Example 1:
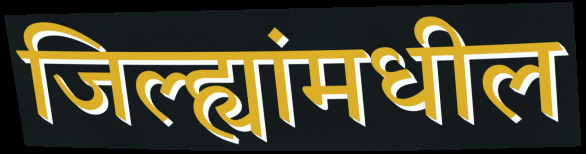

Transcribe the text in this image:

जिल्ह्यांमधील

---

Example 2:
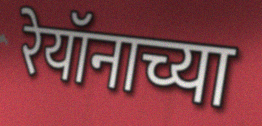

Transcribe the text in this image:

रेयॉनाच्या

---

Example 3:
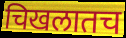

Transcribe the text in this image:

चिखलातच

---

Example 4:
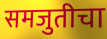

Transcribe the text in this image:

समजुतीचा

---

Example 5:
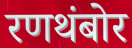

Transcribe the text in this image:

रणथंबोर